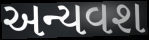
અન્યવશ